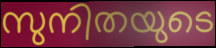
സുനിതയുടെ